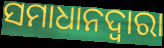
ସମାଧାନଦ୍ୱାରା